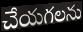
చేయగలను